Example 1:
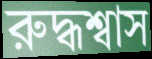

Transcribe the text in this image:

রুদ্ধশ্বাস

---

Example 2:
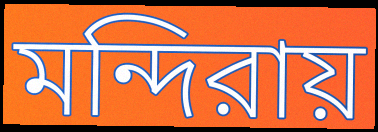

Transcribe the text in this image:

মন্দিরায়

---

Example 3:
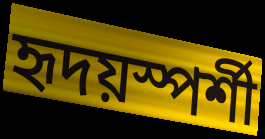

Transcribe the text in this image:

হৃদয়স্পর্শী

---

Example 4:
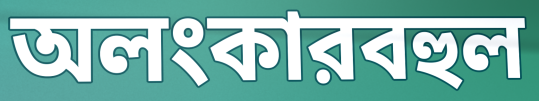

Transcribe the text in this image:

অলংকারবহুল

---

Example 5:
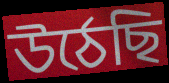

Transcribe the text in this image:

উঠেছি